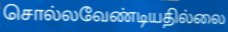
சொல்லவேண்டியதில்லை